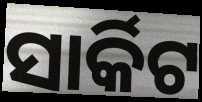
ସାର୍କିଟ